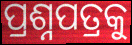
ପ୍ରଶ୍ନପତ୍ରକୁ